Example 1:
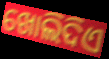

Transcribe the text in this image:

ଖୋଲିଦିଏ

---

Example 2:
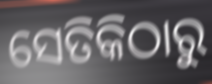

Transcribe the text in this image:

ସେତିକିଠାରୁ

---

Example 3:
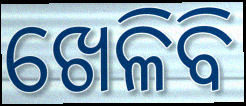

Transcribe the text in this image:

ଖେଳିବି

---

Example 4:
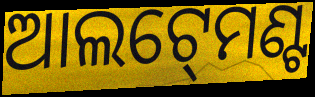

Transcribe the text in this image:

ଆଲଟ୍‍ମେଣ୍ଟ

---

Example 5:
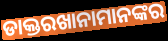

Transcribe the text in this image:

ଡାକ୍ତରଖାନାମାନଙ୍କର